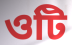
ওটি